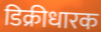
डिक्रीधारक